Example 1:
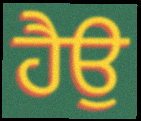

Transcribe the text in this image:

ਹੈਉ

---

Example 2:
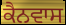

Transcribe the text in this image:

ਕੈਨਵਾਸ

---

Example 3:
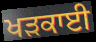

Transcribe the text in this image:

ਖੜਕਾਈ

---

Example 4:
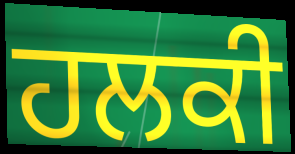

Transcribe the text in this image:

ਹਲਕੀ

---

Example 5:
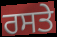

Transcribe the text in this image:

ਰਸਤੇ